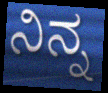
ನಿನ್ನ